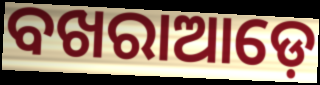
ବଖରାଆଡ଼େ